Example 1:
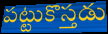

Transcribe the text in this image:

పట్టుకొస్తడు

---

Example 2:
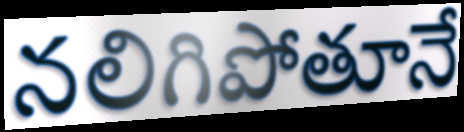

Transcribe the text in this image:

నలిగిపోతూనే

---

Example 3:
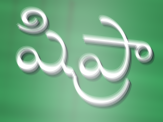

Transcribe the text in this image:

షిప్రా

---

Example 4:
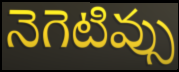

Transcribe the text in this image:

నెగెటివ్సు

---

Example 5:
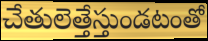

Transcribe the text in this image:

చేతులెత్తేస్తుండటంతో